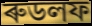
ৰুডলফ